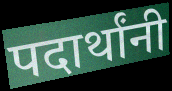
पदार्थांनी